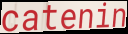
catenin